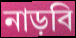
নাড়বি